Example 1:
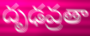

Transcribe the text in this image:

దృఢవ్రతా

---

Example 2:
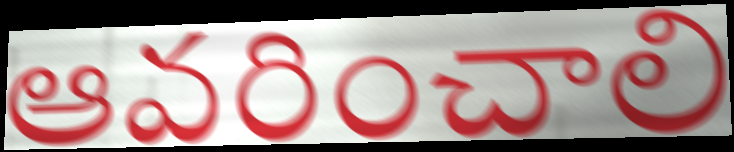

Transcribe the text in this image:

ఆవరించాలి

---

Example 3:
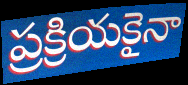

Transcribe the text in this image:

ప్రక్రియకైనా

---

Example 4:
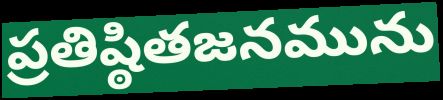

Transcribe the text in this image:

ప్రతిష్ఠితజనమును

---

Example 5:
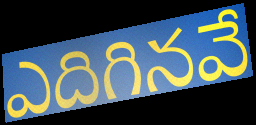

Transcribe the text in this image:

ఎదిగినవే